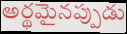
అర్థమైనప్పుడు